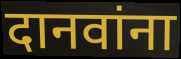
दानवांना